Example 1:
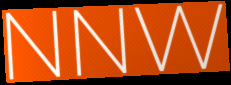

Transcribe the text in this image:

NNW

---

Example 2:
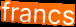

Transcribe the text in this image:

francs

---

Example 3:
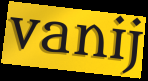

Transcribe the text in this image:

vanij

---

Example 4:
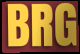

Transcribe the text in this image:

BRG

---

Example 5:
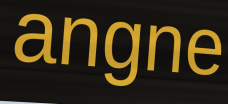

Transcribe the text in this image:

angne